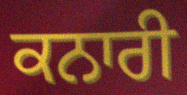
ਕਨਾਰੀ